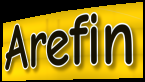
Arefin